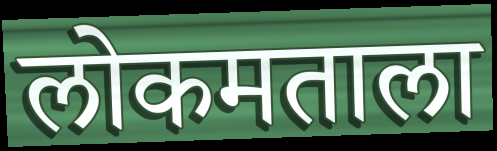
लोकमताला